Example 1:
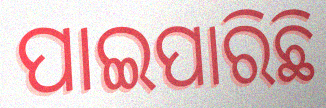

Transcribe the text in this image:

ପାଇପାରିଛି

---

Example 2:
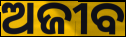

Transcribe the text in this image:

ଅଜୀବ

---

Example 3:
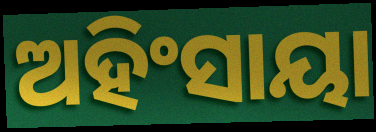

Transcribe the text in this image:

ଅହିଂସାୟା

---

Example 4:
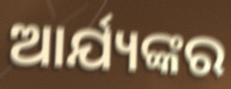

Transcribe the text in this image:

ଆର୍ଯ୍ୟଙ୍କର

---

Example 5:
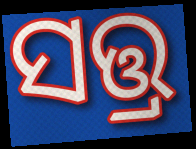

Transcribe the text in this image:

ସତ୍ତ୍ର